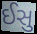
ઈસુ